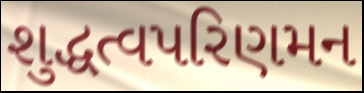
શુદ્ધત્વપરિણમન